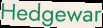
Hedgewar